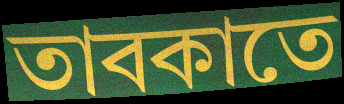
তাবকাতে